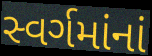
સ્વર્ગમાંનાં